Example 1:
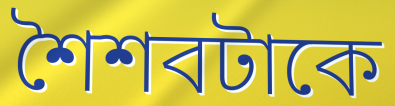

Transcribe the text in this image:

শৈশবটাকে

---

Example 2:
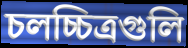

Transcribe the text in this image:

চলচ্চিত্রগুলি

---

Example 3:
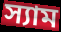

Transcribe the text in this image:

স্যাম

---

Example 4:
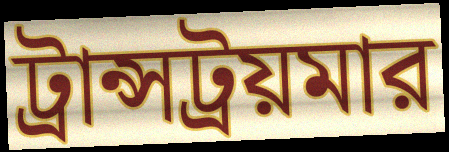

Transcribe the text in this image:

ট্রান্সট্রয়মার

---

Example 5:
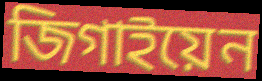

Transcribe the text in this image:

জিগাইয়েন